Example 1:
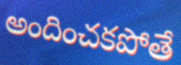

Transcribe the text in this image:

అందించకపోతే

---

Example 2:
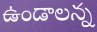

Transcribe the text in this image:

ఉండాలన్న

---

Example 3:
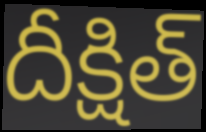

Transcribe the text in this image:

దీక్షిత్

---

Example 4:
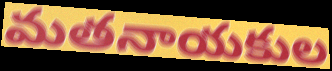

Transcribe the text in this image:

మతనాయకుల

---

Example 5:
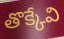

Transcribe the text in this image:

తొక్కేవి